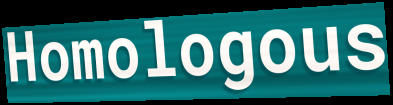
Homologous